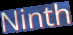
Ninth